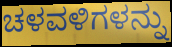
ಚಳವಳಿಗಳನ್ನು